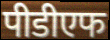
पीडीएफ